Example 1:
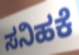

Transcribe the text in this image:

ಸನಿಹಕೆ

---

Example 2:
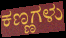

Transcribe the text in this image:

ಕಣ್ಣಗಳು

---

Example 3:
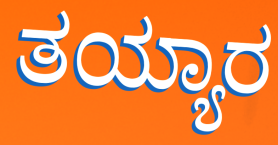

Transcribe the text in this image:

ತಯ್ಯಾರ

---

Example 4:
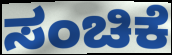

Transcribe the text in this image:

ಸಂಚಿಕೆ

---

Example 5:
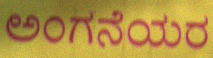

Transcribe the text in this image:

ಅಂಗನೆಯರ